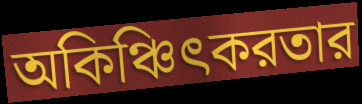
অকিঞ্চিৎকরতার